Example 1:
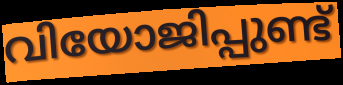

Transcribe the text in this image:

വിയോജിപ്പുണ്ട്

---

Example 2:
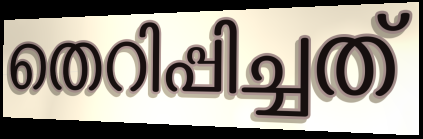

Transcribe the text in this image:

തെറിപ്പിച്ചത്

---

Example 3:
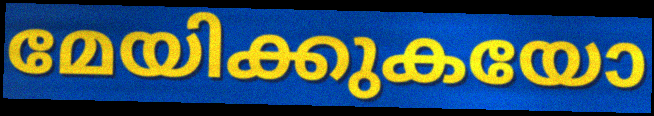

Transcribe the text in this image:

മേയിക്കുകയോ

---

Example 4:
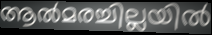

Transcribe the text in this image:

ആൽമരച്ചില്ലയിൽ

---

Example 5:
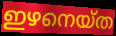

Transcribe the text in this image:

ഇഴനെയ്ത